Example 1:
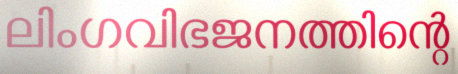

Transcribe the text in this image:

ലിംഗവിഭജനത്തിന്റെ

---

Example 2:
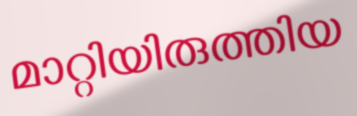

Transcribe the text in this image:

മാറ്റിയിരുത്തിയ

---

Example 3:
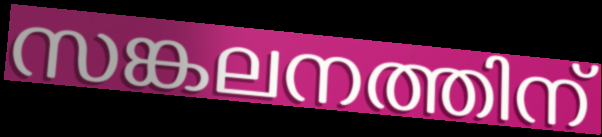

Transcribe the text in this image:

സങ്കലനത്തിന്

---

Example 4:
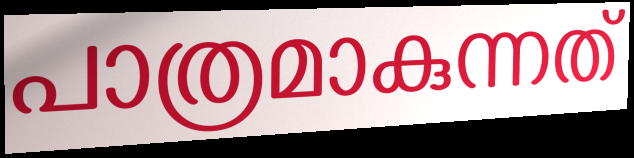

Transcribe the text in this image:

പാത്രമാകുന്നത്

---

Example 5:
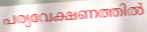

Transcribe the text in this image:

പര്യവേക്ഷണത്തിൽ